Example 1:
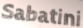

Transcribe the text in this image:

Sabatini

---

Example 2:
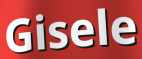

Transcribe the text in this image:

Gisele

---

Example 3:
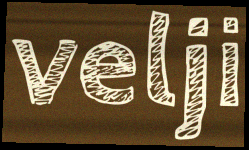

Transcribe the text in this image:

velji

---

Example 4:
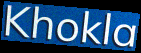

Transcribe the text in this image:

Khokla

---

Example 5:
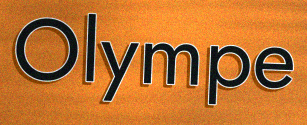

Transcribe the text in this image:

Olympe